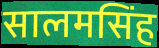
सालमसिंह